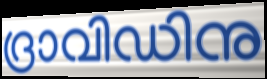
ദ്രാവിഡിനു